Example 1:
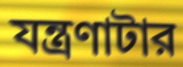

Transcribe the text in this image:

যন্ত্রণাটার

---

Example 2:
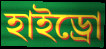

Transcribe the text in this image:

হাইড্রো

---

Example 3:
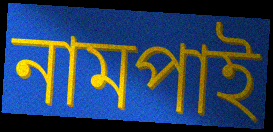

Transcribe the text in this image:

নামপাই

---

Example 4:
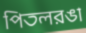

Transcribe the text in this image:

পিতলরঙা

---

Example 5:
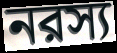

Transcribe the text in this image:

নরস্য